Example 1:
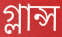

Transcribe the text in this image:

গ্লান্স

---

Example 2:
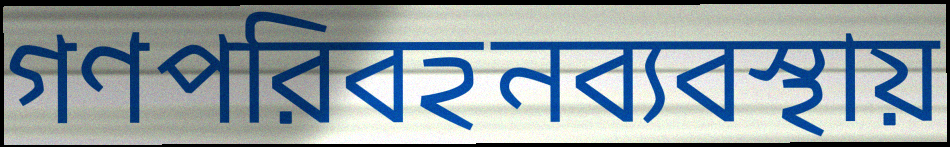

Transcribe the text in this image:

গণপরিবহনব্যবস্থায়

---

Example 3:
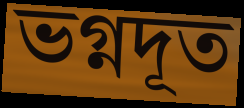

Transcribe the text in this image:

ভগ্নদূত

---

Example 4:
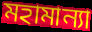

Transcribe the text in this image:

মহামান্যা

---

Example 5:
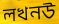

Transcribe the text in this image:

লখনউ